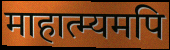
माहात्म्यमपि